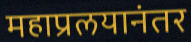
महाप्रलयानंतर